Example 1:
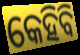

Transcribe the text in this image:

କେହିବି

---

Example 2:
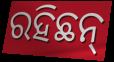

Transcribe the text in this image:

ରହିଛନ୍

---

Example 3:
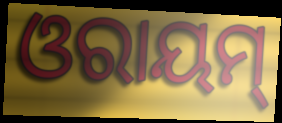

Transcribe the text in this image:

ଓରାୟମ୍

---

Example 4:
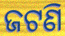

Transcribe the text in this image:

ଜଟଣି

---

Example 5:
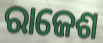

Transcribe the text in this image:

ରାଜେଶ